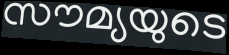
സൗമ്യയുടെ